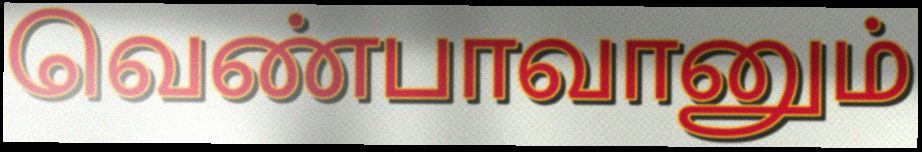
வெண்பாவானும்